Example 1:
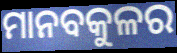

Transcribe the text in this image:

ମାନବକୁଳର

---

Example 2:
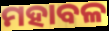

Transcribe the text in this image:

ମହାବଳ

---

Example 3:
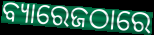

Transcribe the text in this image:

ବ୍ୟାରେଜଠାରେ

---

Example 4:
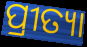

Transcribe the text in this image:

ପ୍ରୀତ୍ୟା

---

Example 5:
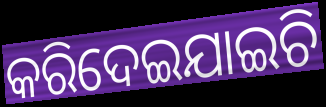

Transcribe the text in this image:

କରିଦେଇଯାଇଚି